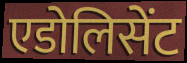
एडोलिसेंट